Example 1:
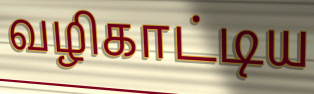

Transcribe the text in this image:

வழிகாட்டிய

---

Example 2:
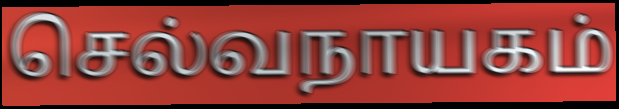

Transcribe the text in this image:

செல்வநாயகம்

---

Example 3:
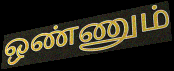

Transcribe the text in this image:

ஒண்ணும்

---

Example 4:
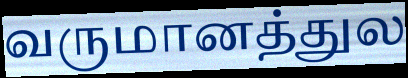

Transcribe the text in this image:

வருமானத்துல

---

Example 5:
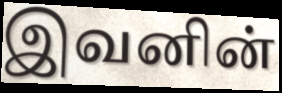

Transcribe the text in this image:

இவனின்